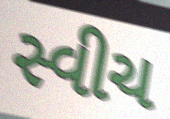
સ્વીચ